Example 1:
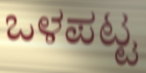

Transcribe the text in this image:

ಒಳಪಟ್ಟ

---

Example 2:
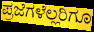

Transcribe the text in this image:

ಪ್ರಜೆಗಳೆಲ್ಲರಿಗೂ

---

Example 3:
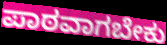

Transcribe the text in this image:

ಪಾಠವಾಗಬೇಕು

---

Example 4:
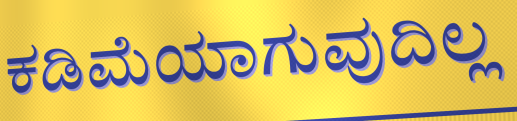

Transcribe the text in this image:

ಕಡಿಮೆಯಾಗುವುದಿಲ್ಲ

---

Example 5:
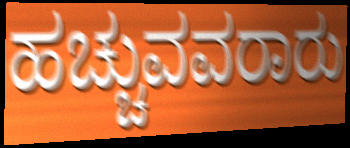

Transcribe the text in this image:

ಹಚ್ಚುವವರಾರು